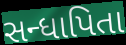
સન્ધાપિતા